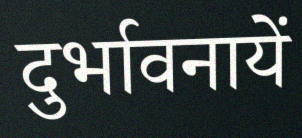
दुर्भावनायें